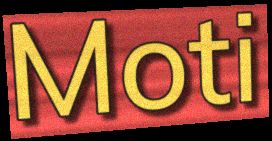
Moti